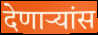
देणाऱ्यांस